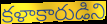
కళాకారుడిని